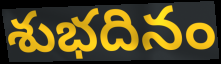
శుభదినం